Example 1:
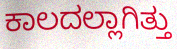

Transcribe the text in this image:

ಕಾಲದಲ್ಲಾಗಿತ್ತು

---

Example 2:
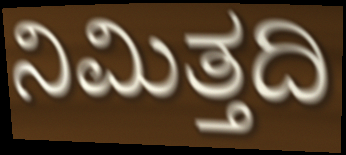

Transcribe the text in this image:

ನಿಮಿತ್ತದಿ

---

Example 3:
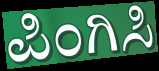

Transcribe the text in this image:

ಪಿಂಗಿಸಿ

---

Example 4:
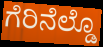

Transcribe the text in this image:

ಗೆರಿನೆಲ್ಡೊ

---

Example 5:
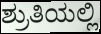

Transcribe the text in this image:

ಶ್ರುತಿಯಲ್ಲಿ